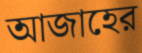
আজাহের